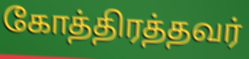
கோத்திரத்தவர்